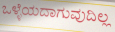
ಒಳ್ಳೆಯದಾಗುವುದಿಲ್ಲ